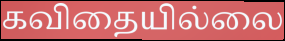
கவிதையில்லை